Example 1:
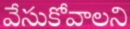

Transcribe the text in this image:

వేసుకోవాలని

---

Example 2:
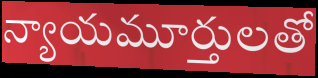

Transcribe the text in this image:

న్యాయమూర్తులతో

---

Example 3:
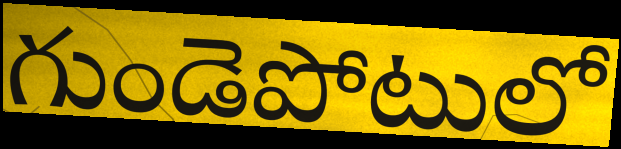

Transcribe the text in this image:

గుండెపోటులో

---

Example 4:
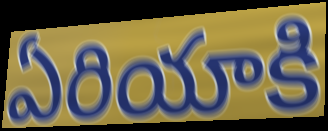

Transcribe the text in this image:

ఏరియాకి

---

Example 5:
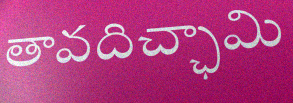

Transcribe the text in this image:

తావదిచ్ఛామి